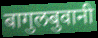
बागुलबुवानी